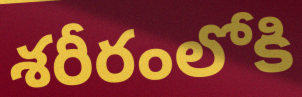
శరీరంలోకి